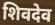
शिवदेव